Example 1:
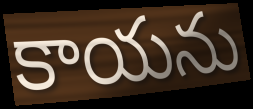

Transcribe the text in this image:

కాయను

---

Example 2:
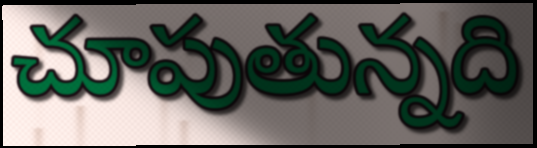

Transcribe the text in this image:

చూపుతున్నది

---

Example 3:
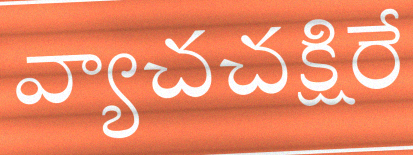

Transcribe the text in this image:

వ్యాచచక్షిరే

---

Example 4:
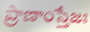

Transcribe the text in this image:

ప్రాణాంస్తేజః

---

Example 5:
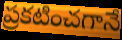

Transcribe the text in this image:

ప్రకటించగానే